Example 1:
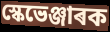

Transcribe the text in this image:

স্কেভেঞ্জাৰক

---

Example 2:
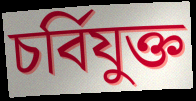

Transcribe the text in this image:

চৰ্বিযুক্ত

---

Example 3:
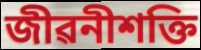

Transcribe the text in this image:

জীৱনীশক্তি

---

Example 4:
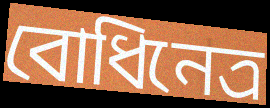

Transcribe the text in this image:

বোধিনেত্ৰ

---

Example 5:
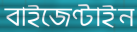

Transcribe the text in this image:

বাইজেণ্টাইন